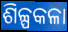
ଶିଳ୍ପକଳା